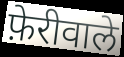
फ़ेरीवाले